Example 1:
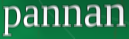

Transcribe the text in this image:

pannan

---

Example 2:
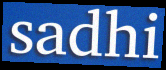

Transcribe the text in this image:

sadhi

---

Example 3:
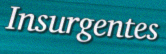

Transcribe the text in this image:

Insurgentes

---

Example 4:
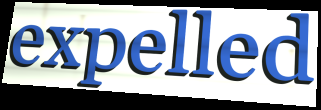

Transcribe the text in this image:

expelled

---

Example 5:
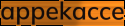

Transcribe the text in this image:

appekacce